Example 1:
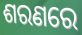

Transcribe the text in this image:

ଶରଣରେ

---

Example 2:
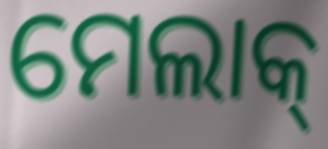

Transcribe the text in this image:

ମେଲାକ୍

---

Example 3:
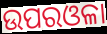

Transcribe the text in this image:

ଉପରଓଳା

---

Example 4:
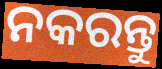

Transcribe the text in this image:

ନକରନ୍ତୁ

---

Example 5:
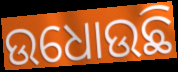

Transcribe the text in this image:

ଉଧୋଉଛି